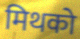
मिथको